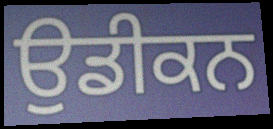
ਉਡੀਕਨ